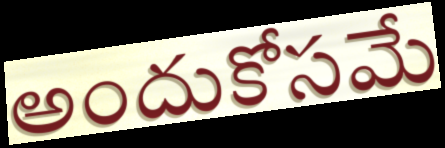
అందుకోసమే